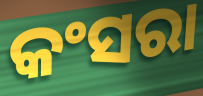
କଂସରା